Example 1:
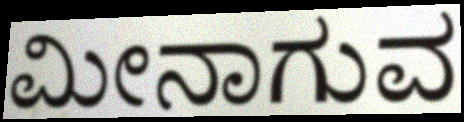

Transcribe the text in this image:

ಮೀನಾಗುವ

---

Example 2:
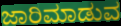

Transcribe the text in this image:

ಜಾರಿಮಾಡುವ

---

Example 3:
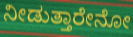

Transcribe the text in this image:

ನೀಡುತ್ತಾರೇನೋ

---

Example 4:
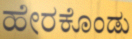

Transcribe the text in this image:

ಹೇರಕೊಂಡು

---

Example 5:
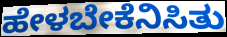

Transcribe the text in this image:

ಹೇಳಬೇಕೆನಿಸಿತು